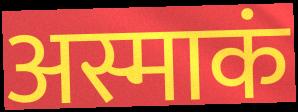
अस्माकं